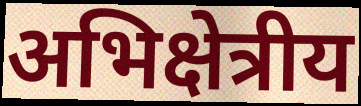
अभिक्षेत्रीय